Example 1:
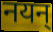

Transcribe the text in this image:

नयन्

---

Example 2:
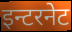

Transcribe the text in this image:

इन्टरनेट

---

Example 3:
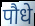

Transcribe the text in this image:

पौधे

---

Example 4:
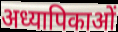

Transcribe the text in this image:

अध्यापिकाओं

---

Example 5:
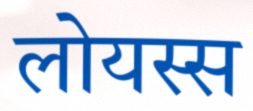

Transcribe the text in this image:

लोयस्स